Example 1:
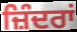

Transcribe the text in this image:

ਜ਼ਿੰਦਰਾਂ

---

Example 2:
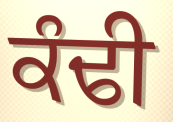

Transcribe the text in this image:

ਕੰਢੀ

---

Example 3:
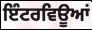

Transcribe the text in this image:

ਇੰਟਰਵਿਊਆਂ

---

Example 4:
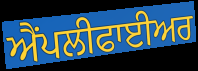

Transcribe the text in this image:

ਐੰਪਲੀਫਾਈਅਰ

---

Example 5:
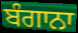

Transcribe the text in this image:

ਬੰਗਾਨਾ